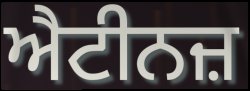
ਐਟੀਨਜ਼